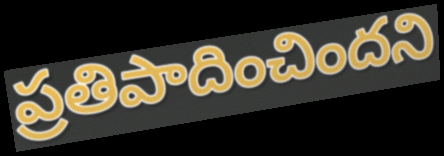
ప్రతిపాదించిందని